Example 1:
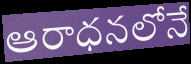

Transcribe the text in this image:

ఆరాధనలోనే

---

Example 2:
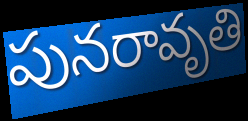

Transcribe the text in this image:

పునరావృతి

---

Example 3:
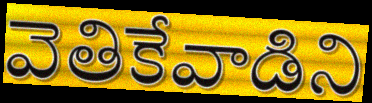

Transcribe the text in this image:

వెతికేవాడిని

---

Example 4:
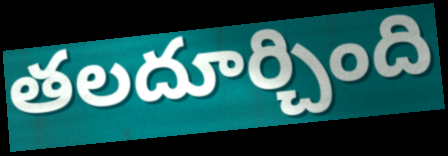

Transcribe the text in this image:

తలదూర్చింది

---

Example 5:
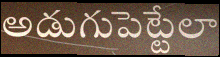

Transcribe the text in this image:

అడుగుపెట్టేలా